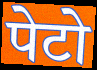
पेटो